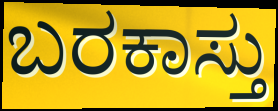
ಬರಕಾಸ್ತು